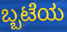
ಬ್ಬಟೆಯ